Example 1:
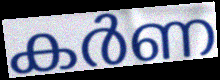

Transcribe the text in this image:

കർണ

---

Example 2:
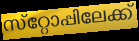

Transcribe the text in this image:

സ്‌റ്റോപ്പിലേക്ക്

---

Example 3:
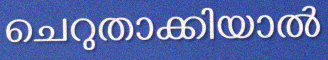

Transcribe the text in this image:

ചെറുതാക്കിയാൽ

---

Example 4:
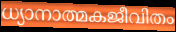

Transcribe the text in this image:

ധ്യാനാത്മകജീവിതം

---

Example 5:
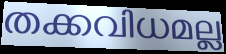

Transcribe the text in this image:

തക്കവിധമല്ല